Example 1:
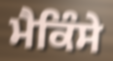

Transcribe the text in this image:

ਮੈਕਿੰਸੇ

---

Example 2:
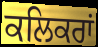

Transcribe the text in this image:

ਕਲਿਕਰਾਂ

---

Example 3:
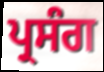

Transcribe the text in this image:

ਪ੍ਰਸੰਗ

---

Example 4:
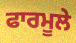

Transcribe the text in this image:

ਫਾਰਮੂਲੇ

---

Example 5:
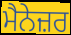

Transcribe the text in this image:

ਮੈਨੇਜ਼ਰ